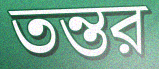
তন্তর